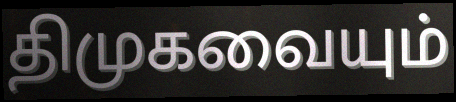
திமுகவையும்